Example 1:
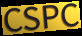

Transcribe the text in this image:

CSPC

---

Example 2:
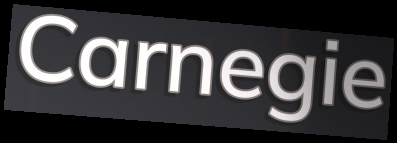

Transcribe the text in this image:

Carnegie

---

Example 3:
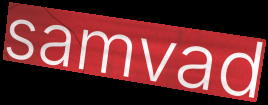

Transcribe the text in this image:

samvad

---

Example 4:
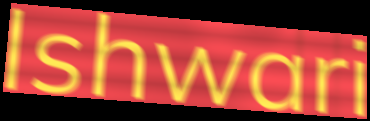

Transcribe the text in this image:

Ishwari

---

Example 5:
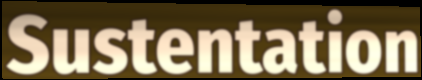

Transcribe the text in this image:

Sustentation